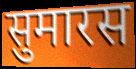
सुमारस